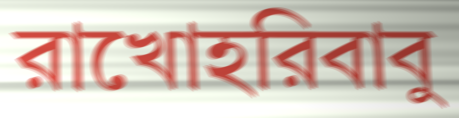
রাখোহরিবাবু